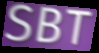
SBT